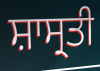
ਸ਼ਾਸ੍ਰਤੀ